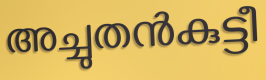
അച്ചുതൻകുട്ടീ